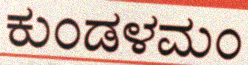
ಕುಂಡಳಮಂ